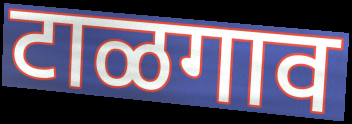
टाळगाव